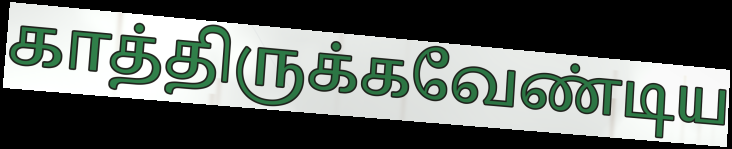
காத்திருக்கவேண்டிய